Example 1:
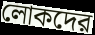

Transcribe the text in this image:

লোকদের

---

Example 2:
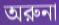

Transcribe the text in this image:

অরুনা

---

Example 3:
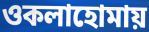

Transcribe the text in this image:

ওকলাহোমায়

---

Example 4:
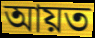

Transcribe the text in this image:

আয়ত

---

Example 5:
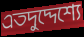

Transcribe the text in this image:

এতদুদ্দেশ্যে